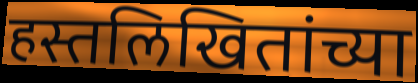
हस्तलिखितांच्या